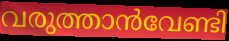
വരുത്താൻവേണ്ടി